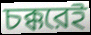
চক্করেই